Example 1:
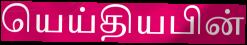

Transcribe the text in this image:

யெய்தியபின்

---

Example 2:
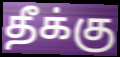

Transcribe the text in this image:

தீக்கு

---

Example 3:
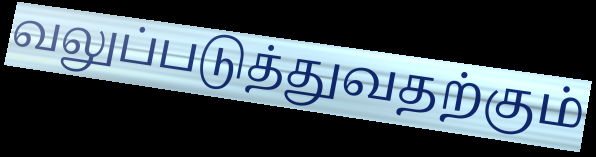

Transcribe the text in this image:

வலுப்படுத்துவதற்கும்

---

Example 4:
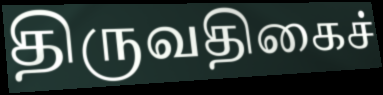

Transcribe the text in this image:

திருவதிகைச்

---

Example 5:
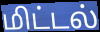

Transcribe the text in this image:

மிட்டல்